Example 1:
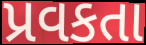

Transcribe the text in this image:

પ્રવકતા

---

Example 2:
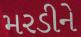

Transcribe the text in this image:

મરડીને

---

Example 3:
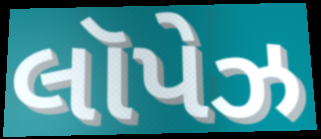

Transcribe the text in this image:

લૉપેઝ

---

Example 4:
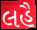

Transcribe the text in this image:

લહૈ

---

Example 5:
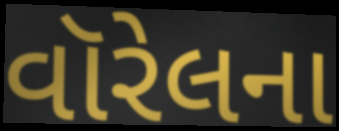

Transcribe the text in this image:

વૉરેલના